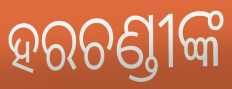
ହରଚଣ୍ଡୀଙ୍କ